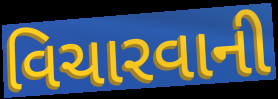
વિચારવાની